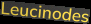
Leucinodes